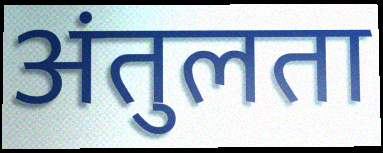
अंतुलता